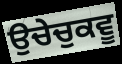
ਉਚੇਚੁਕਵੂ